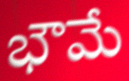
భౌమే